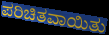
ಪರಿಚಿತವಾಯಿತು